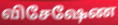
விசேஷேண